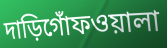
দাড়িগোঁফওয়ালা